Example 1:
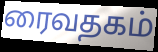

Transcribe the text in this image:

ரைவதகம்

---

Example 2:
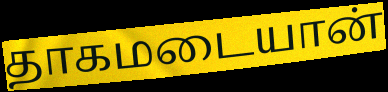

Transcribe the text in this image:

தாகமடையான்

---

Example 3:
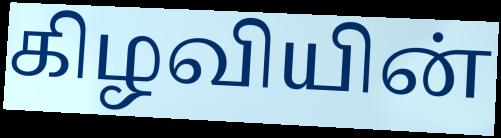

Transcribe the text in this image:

கிழவியின்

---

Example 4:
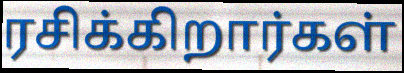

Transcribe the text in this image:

ரசிக்கிறார்கள்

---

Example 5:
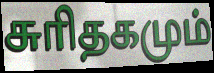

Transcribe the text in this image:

சுரிதகமும்